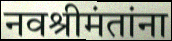
नवश्रीमंतांना